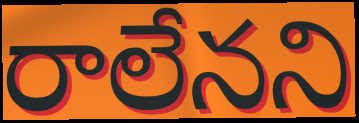
రాలేనని